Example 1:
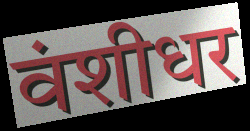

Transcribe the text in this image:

वंशीधर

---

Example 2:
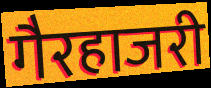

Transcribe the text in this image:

गैरहाजरी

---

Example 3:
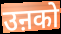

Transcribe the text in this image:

उऩको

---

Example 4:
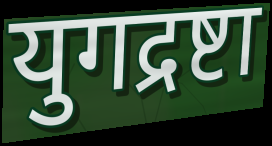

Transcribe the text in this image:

युगद्रष्टा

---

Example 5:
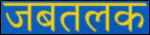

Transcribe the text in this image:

जबतलक